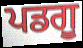
ਪਡਗੂ